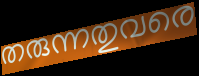
തരുന്നതുവരെ